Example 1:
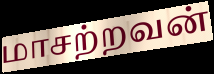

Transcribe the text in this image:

மாசற்றவன்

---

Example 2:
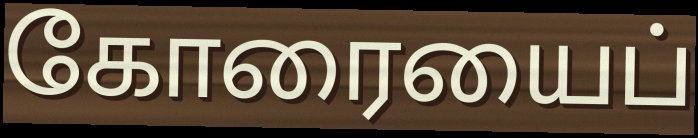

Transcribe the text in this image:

கோரையைப்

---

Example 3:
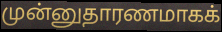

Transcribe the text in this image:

முன்னுதாரணமாகக்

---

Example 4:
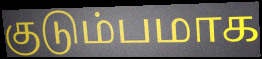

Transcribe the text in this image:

குடும்பமாக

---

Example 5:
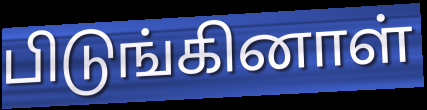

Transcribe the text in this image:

பிடுங்கினாள்